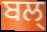
ਬਲ੍